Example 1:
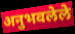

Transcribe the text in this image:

अनुभवलेले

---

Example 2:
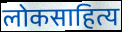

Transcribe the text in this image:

लोकसाहित्य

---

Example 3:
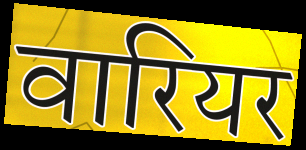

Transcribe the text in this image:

वारियर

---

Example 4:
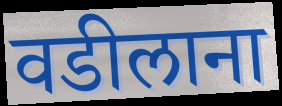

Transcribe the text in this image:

वडीलाना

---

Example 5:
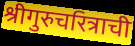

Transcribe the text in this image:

श्रीगुरुचरित्राची